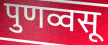
पुणव्वसू